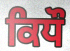
ਕਿਧੌ